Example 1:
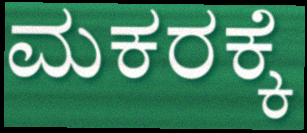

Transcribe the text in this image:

ಮಕರಕ್ಕೆ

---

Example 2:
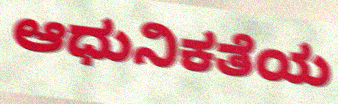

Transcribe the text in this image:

ಆಧುನಿಕತೆಯ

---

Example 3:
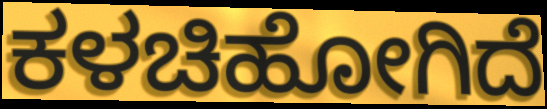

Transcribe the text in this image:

ಕಳಚಿಹೋಗಿದೆ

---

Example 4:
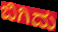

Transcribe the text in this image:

ಬಿಗಿದು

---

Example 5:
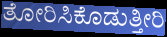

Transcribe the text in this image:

ತೋರಿಸಿಕೊಡುತ್ತೀರಿ